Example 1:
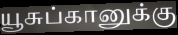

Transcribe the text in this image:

யூசுப்கானுக்கு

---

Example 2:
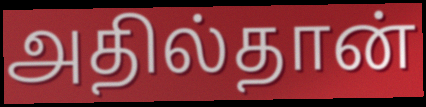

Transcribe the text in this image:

அதில்தான்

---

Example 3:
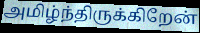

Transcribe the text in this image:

அமிழ்ந்திருக்கிறேன்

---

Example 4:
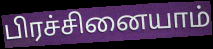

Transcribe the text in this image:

பிரச்சினையாம்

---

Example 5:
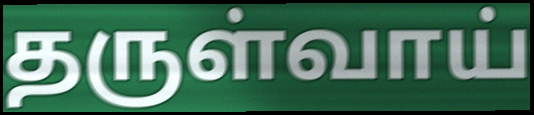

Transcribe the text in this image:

தருள்வாய்